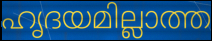
ഹൃദയമില്ലാത്ത